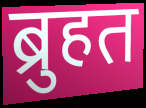
ब्रुहत